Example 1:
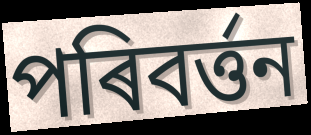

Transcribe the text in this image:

পৰিবৰ্ত্তন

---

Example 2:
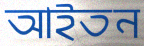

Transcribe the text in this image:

আইতন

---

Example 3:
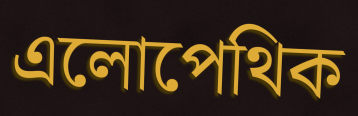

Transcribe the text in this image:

এলোপেথিক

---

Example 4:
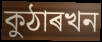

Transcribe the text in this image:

কুঠাৰখন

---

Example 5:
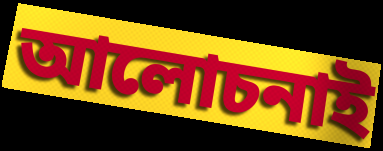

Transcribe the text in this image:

আলোচনাই